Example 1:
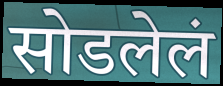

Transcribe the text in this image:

सोडलेलं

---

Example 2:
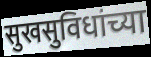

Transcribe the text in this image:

सुखसुविधांच्या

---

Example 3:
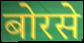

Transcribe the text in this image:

बोरसे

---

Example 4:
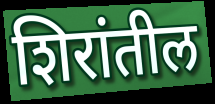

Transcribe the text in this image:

शिरांतील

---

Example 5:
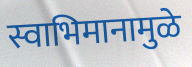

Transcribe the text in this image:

स्वाभिमानामुळे